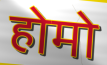
होमो